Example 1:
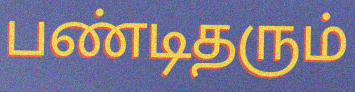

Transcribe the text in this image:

பண்டிதரும்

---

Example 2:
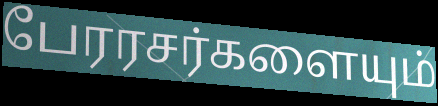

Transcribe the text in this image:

பேரரசர்களையும்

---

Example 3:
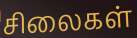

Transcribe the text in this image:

சிலைகள்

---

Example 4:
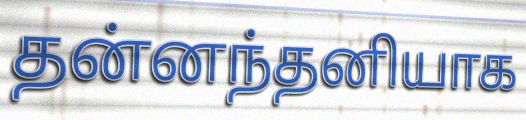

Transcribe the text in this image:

தன்னந்தனியாக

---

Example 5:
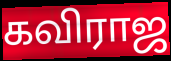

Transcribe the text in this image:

கவிராஜ